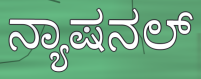
ನ್ಯಾಷನಲ್